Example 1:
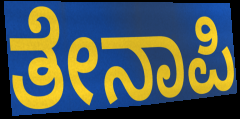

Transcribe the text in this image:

ತೇನಾಪಿ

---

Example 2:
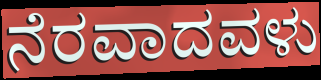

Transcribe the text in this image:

ನೆರವಾದವಳು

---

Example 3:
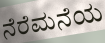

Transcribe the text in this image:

ನೆರೆಮನೆಯ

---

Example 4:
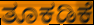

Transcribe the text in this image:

ತೂಕಡಿಕೆ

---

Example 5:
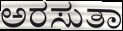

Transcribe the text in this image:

ಅರಸುತಾ